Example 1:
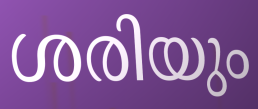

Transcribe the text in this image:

ശരിയും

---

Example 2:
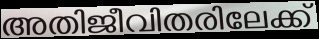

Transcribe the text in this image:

അതിജീവിതരിലേക്ക്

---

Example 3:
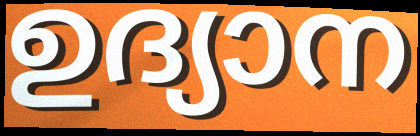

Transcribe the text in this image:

ഉദ്യാന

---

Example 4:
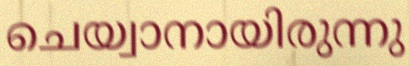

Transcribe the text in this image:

ചെയ്വാനായിരുന്നു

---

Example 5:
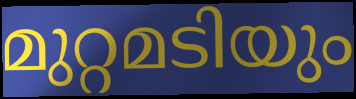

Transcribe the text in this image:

മുറ്റമടിയും